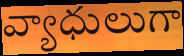
వ్యాధులుగా